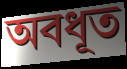
অবধূত